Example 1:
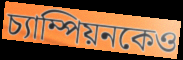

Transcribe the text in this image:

চ্যাম্পিয়নকেও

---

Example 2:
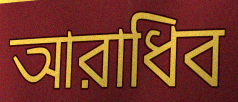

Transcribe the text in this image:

আরাধিব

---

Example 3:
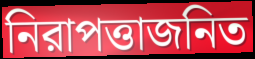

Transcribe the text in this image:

নিরাপত্তাজনিত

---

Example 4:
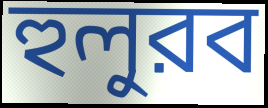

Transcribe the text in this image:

হুলুরব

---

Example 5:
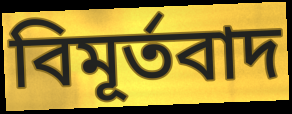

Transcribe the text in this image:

বিমূর্তবাদ